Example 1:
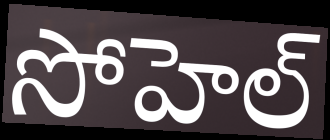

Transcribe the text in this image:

సోహెల్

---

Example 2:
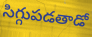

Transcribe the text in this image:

సిగ్గుపడతాడో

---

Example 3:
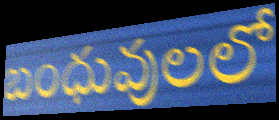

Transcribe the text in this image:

బంధువులలో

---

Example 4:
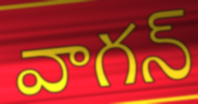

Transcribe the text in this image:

వాగన్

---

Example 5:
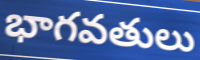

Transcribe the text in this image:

భాగవతులు